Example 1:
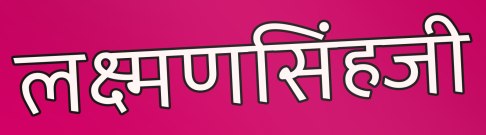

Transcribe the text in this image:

लक्ष्मणसिंहजी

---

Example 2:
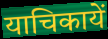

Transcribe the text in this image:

याचिकायें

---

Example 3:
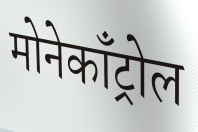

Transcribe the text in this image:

मोनेकॉंट्रोल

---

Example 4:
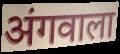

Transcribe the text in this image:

अंगवाला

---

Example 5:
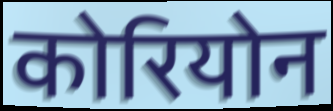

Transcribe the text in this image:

कोरियोन